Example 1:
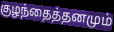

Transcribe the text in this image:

குழந்தைத்தனமும்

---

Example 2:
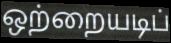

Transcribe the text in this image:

ஒற்றையடிப்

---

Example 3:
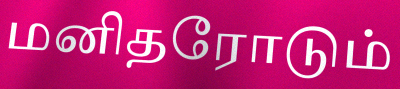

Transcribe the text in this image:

மனிதரோடும்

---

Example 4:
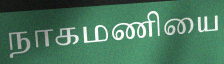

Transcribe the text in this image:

நாகமணியை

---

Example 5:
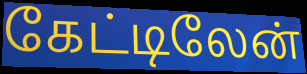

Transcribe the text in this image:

கேட்டிலேன்